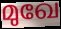
മുഖേ